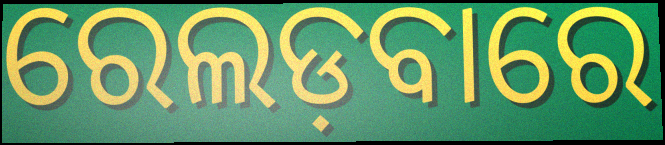
ରେଲଡ଼ବାରେ